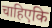
चाहिएकि